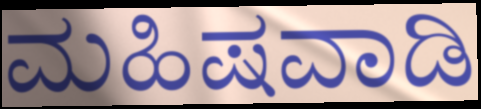
ಮಹಿಷವಾಡಿ